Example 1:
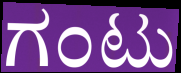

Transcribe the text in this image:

ಗಂಟು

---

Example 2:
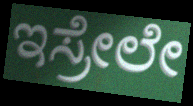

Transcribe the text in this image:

ಇಸ್ರೇಲೇ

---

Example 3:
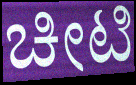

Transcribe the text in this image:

ಚೀಟಿ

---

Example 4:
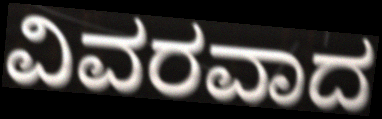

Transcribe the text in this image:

ವಿವರವಾದ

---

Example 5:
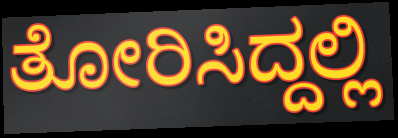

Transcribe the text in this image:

ತೋರಿಸಿದ್ದಲ್ಲಿ